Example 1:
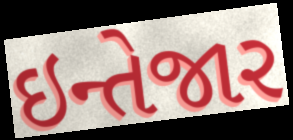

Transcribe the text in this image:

ઇન્તેજાર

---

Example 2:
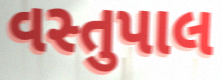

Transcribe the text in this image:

વસ્તુપાલ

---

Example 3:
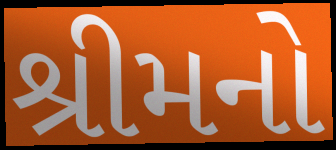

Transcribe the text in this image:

શ્રીમનો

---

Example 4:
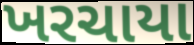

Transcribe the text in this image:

ખરચાયા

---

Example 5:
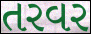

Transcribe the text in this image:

તરવર